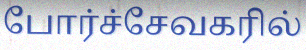
போர்ச்சேவகரில்